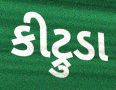
કીટ્રુડા